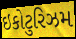
ઇકોટુરિઝમ